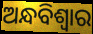
ଅନ୍ଧବିଶ୍ୱାର